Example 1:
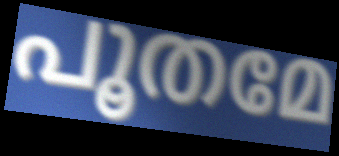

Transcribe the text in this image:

പൂതമേ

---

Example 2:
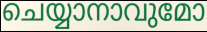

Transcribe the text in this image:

ചെയ്യാനാവുമോ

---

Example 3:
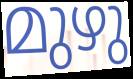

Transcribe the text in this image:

മുഴു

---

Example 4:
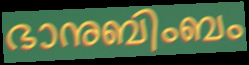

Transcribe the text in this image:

ഭാനുബിംബം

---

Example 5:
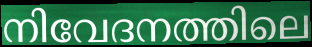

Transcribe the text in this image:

നിവേദനത്തിലെ